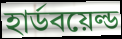
হার্ডবয়েল্ড